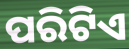
ପରିଟିଏ